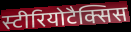
स्टीरियोटैक्सिस